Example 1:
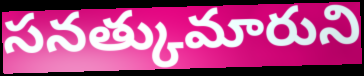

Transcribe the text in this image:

సనత్కుమారుని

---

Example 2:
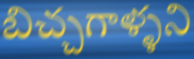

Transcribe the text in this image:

బిచ్చగాళ్ళని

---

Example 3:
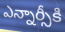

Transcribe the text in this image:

ఎన్నార్సీకి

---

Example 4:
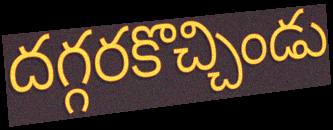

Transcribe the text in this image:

దగ్గరకొచ్చిండు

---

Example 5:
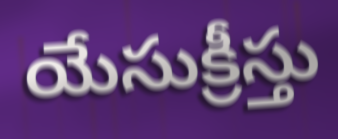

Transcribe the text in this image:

యేసుక్రీస్తు